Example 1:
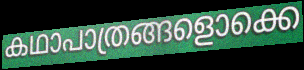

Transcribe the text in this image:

കഥാപാത്രങ്ങളൊക്കെ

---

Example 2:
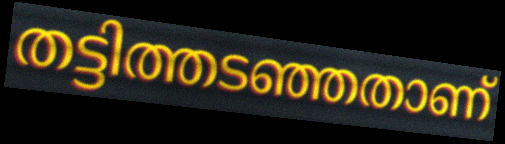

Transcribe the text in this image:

തട്ടിത്തടഞ്ഞതാണ്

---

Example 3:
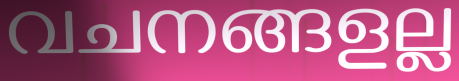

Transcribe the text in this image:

വചനങ്ങളല്ല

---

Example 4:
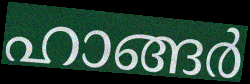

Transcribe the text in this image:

ഹാങ്ങർ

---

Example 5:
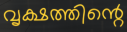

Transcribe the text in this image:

വൃക്ഷത്തിന്റെ